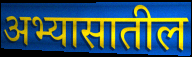
अभ्यासातील